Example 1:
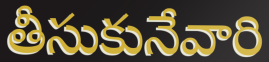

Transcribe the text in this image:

తీసుకునేవారి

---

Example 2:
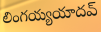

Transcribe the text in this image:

లింగయ్యయాదవ్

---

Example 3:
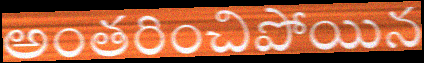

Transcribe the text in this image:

అంతరించిపోయిన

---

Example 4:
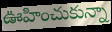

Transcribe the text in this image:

ఊహించుకున్నా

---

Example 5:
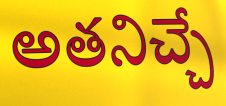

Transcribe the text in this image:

అతనిచ్చే